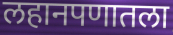
लहानपणातला